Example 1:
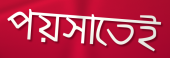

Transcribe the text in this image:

পয়সাতেই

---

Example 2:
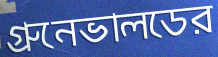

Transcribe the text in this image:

গ্রুনেভালডের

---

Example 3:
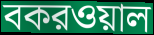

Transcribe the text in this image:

বকরওয়াল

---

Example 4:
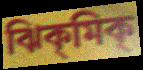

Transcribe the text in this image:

ঝিক্‌মিক্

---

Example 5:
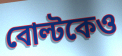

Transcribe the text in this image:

বোল্টকেও